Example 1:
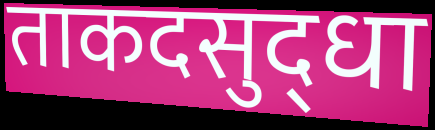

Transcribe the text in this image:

ताकदसुद्धा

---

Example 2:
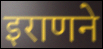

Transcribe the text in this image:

इराणने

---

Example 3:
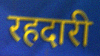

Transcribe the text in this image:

रहदारी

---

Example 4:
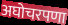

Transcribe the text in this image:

अघोचरपणा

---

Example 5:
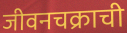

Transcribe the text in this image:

जीवनचक्राची